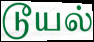
டூயல்